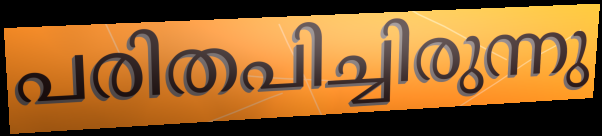
പരിതപിച്ചിരുന്നു